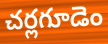
చర్లగూడెం